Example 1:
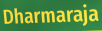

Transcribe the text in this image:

Dharmaraja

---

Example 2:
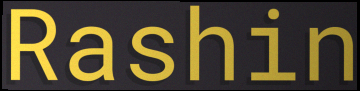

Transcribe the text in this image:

Rashin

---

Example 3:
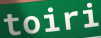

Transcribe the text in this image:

toiri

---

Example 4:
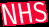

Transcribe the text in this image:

NHS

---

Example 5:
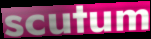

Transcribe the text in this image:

scutum